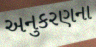
અનુકરણના